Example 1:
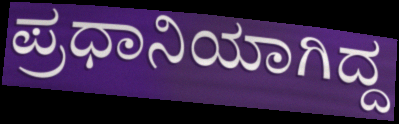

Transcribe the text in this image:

ಪ್ರಧಾನಿಯಾಗಿದ್ದ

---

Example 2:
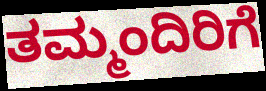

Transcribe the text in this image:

ತಮ್ಮಂದಿರಿಗೆ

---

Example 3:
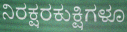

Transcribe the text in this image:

ನಿರಕ್ಷರಕುಕ್ಷಿಗಳೂ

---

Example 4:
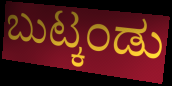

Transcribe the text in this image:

ಬುಟ್ಕಂಡು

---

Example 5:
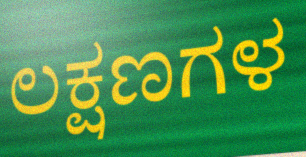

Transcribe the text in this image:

ಲಕ್ಷಣಗಳ